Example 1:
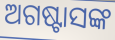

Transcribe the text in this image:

ଅଗଷ୍ଟାସଙ୍କ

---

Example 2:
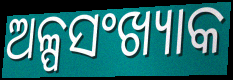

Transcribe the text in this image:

ଅଳ୍ପସଂଖ୍ୟାକ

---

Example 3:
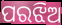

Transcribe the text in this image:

ପରଝିଅ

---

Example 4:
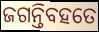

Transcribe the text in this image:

ଜଗନ୍ତିବହତେ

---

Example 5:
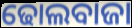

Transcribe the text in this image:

ଢୋଲବାଜା